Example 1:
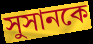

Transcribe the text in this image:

সুসানকে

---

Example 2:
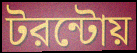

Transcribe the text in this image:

টরন্টোয়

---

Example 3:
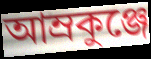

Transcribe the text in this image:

আম্রকুঞ্জে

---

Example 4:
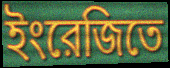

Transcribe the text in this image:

ইংরেজিতে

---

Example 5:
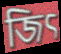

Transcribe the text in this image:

জিৎ